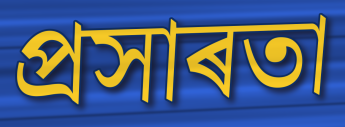
প্ৰসাৰতা